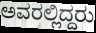
ಅವರಲ್ಲಿದ್ದರು